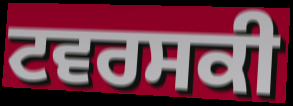
ਟਵਰਸਕੀ